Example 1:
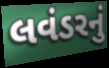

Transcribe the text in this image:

લવંડરનું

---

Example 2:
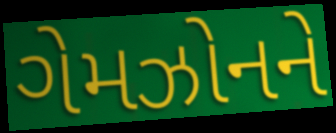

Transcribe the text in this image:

ગેમઝોનને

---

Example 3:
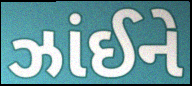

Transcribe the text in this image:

ઝાંઈને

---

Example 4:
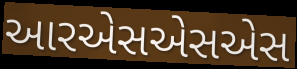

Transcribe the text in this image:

આરએસએસએસ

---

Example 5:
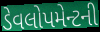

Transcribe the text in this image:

ડેવલોપમેન્ટની